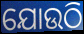
ଯୋଉଠି